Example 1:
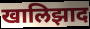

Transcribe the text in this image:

खालिझाद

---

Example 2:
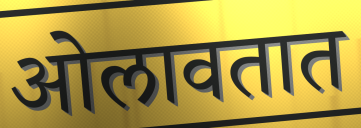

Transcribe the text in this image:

ओलावतात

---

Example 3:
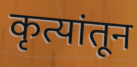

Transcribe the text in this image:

कृत्यांतून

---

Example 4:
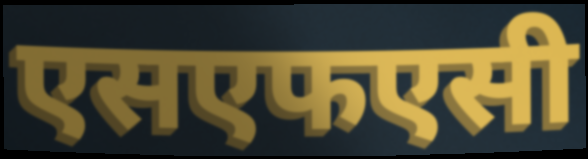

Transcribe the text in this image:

एसएफएसी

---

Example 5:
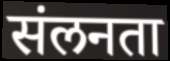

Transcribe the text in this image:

संलनता